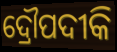
ଦ୍ରୌପଦୀକି